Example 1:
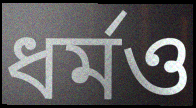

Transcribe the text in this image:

ধর্মও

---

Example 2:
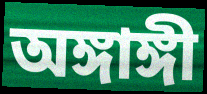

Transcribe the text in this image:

অঙ্গাঙ্গী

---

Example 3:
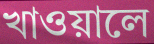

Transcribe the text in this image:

খাওয়ালে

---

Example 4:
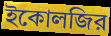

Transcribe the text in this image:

ইকোলজির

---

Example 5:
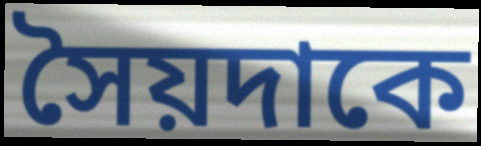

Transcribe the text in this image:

সৈয়দাকে